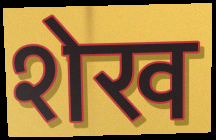
शेख